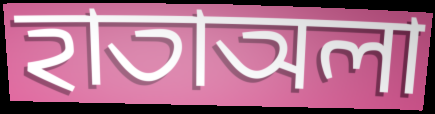
হাতাঅলা